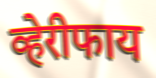
व्हेरीफाय